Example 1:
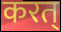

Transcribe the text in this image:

करत्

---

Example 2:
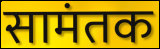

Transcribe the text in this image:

सामंतक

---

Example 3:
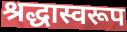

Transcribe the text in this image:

श्रद्धास्वरूप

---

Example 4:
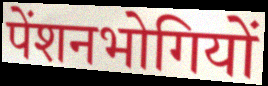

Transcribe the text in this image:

पेंशनभोगियों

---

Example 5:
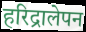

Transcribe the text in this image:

हरिद्रालेपन